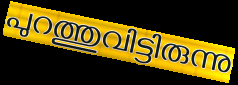
പുറത്തുവിട്ടിരുന്നു